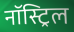
नॉस्ट्रिल